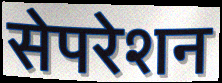
सेपरेशन